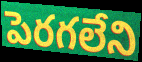
పెరగలేని